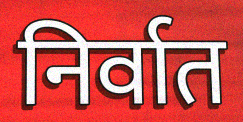
निर्वात